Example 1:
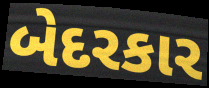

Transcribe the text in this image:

બેદરકાર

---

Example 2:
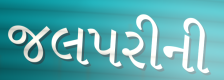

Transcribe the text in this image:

જલપરીની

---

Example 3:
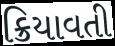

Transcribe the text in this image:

ક્રિયાવતી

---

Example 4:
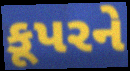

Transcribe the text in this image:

કૂપરને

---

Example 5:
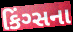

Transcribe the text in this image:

કિંગ્સના